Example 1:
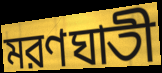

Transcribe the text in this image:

মরণঘাতী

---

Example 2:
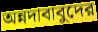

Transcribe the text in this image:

অন্নদাবাবুদের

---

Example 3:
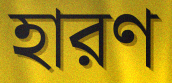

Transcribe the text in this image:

হারণ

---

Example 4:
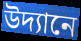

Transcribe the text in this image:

উদ্যানে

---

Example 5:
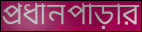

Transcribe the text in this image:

প্রধানপাড়ার